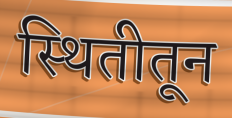
स्थितीतून